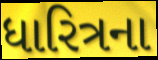
ધારિત્રના